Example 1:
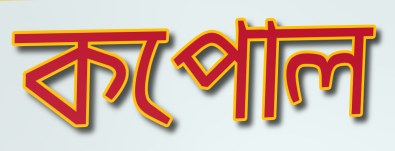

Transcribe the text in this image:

কপোল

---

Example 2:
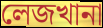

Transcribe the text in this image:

লেজখানা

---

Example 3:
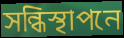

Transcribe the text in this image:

সন্ধিস্থাপনে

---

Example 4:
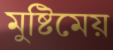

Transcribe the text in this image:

মুষ্টিমেয়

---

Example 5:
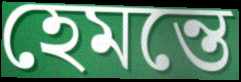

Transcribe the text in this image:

হেমন্তে